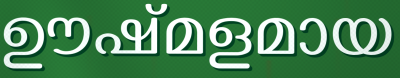
ഊഷ്‌മളമായ